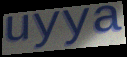
uyya